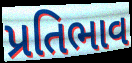
પ્રતિભાવ